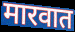
मारवात